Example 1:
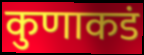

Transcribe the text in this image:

कुणाकडं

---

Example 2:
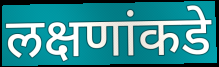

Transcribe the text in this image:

लक्षणांकडे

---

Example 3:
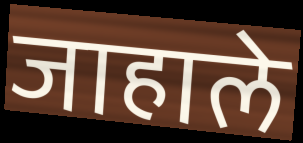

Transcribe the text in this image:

जाहाले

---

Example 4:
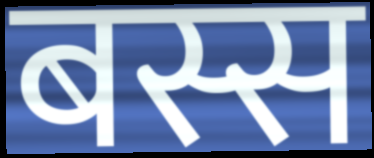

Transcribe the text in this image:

बस्स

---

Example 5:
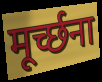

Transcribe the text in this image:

मूर्च्छना